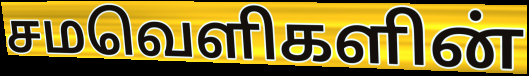
சமவெளிகளின்